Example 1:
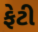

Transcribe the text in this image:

ફેટી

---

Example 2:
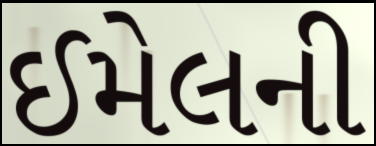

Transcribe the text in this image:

ઈમેલની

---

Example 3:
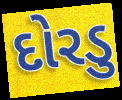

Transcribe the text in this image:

દોરડુ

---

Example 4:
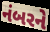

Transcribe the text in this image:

નંબરને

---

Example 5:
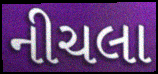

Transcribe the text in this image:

નીચલા